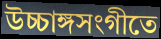
উচ্চাঙ্গসংগীতে